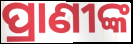
ପ୍ରାଣୀଙ୍କ